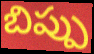
బిప్పు